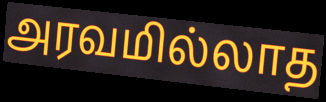
அரவமில்லாத